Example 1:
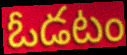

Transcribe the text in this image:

ఓడటం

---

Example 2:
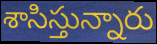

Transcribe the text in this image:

శాసిస్తున్నారు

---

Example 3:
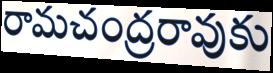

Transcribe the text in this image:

రామచంద్రరావుకు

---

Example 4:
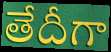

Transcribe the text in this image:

తేదీగా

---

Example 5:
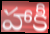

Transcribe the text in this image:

హాకీ